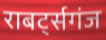
राबर्ट्सगंज